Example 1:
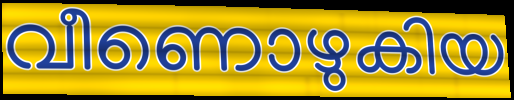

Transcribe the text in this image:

വീണൊഴുകിയ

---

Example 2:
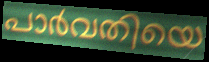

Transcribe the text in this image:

പാർവതിയെ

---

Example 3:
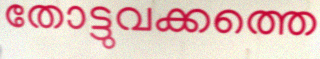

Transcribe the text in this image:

തോട്ടുവക്കത്തെ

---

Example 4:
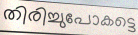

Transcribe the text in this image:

തിരിച്ചുപോകട്ടെ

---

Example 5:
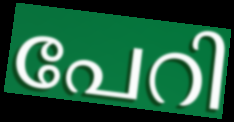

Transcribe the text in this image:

പേറി